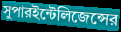
সুপারইন্টেলিজেন্সের